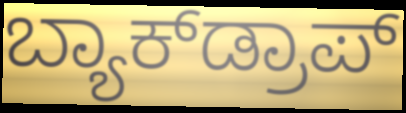
ಬ್ಯಾಕ್‌ಡ್ರಾಪ್